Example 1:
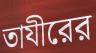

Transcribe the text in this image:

তাযীরের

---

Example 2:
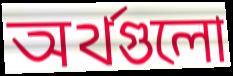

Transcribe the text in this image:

অর্থগুলো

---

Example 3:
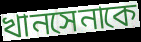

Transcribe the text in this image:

খানসেনাকে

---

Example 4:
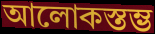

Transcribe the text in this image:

আলোকস্তম্ভ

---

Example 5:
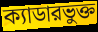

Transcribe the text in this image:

ক্যাডারভুক্ত